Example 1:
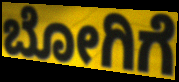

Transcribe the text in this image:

ಬೋಗಿಗೆ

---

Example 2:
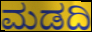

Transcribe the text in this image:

ಮಡದಿ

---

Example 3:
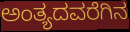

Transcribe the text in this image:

ಅಂತ್ಯದವರೆಗಿನ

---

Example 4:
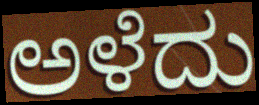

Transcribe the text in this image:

ಅಳೆದು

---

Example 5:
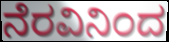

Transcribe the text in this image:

ನೆರವಿನಿಂದ